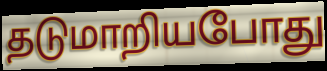
தடுமாறியபோது